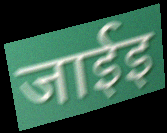
जाईइ